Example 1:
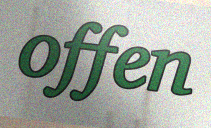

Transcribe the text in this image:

offen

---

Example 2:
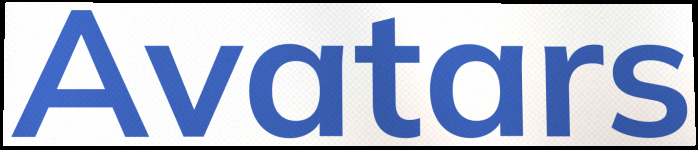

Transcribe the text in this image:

Avatars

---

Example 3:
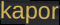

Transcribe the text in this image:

kapor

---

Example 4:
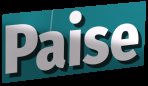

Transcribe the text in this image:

Paise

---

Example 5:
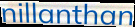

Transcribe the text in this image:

nillanthan